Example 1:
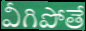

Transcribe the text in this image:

వీగిపోతే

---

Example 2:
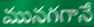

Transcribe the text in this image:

మునగగానే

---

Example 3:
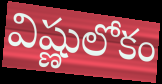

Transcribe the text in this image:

విష్ణులోకం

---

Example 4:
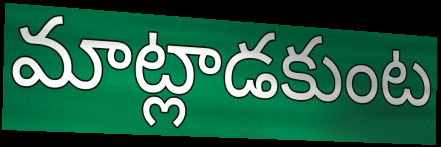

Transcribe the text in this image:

మాట్లాడకుంట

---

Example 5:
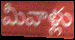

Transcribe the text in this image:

మీవాళ్లు